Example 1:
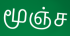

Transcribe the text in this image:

மூஞ்ச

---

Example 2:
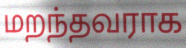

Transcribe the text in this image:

மறந்தவராக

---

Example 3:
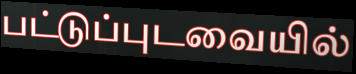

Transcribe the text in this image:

பட்டுப்புடவையில்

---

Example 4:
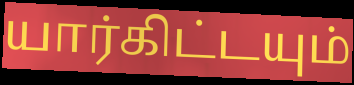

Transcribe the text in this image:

யார்கிட்டயும்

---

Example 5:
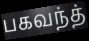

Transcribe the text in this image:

பகவந்த்